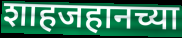
शाहजहानच्या